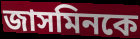
জাসমিনকে